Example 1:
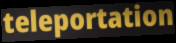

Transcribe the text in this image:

teleportation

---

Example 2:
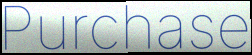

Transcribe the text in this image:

Purchase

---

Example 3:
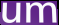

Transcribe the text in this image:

um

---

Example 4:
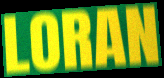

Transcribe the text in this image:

LORAN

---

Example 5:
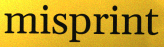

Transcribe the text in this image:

misprint